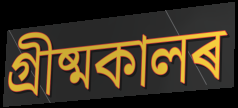
গ্ৰীষ্মকালৰ